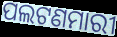
ପଲଟଣମାରୀ